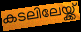
കടലിലേയ്ക്ക്